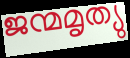
ജന്മമൃത്യു